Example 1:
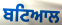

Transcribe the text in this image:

ਬਟਿਆਲ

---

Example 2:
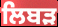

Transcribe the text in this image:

ਲਿਬੜ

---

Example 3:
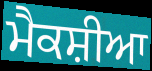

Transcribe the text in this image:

ਮੈਕਸ਼ੀਆ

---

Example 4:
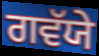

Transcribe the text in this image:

ਗਵੱਯੇ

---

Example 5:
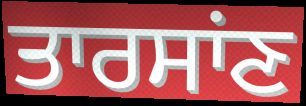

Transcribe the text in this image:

ਤਾਰਸਾਂਣ